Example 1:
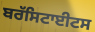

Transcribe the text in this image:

ਬਰੱਸਿਟਾਈਟਸ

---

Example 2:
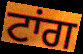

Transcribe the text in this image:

ਟਾਂਗ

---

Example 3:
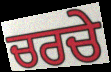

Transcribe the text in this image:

ਚਰਚੇ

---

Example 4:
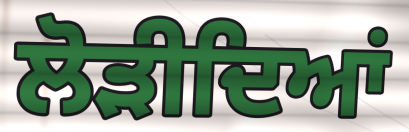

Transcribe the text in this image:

ਲੋੜੀਦਿਆਂ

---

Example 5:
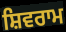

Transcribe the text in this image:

ਸ਼ਿਵਰਾਮ